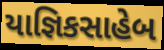
યાજ્ઞિકસાહેબ